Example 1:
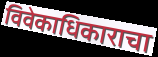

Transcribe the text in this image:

विवेकाधिकाराचा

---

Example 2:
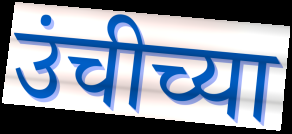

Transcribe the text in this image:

उंचीच्या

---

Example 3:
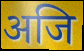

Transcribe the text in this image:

अजि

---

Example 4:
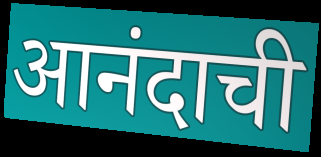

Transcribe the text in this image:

आनंदाची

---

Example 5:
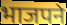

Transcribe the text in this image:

भाजपने